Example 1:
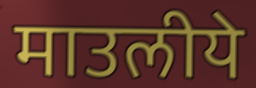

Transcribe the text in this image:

माउलीये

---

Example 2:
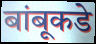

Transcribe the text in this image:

बांबूकडे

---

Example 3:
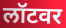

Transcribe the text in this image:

लॉटवर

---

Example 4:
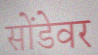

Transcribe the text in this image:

सोंडेवर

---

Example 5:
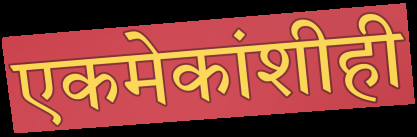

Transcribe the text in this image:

एकमेकांशीही